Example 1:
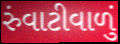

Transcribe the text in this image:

રુંવાટીવાળું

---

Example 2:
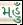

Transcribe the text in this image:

મહુઁ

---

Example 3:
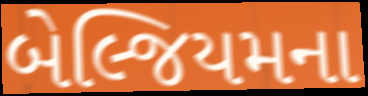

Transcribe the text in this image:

બેલ્જિયમના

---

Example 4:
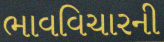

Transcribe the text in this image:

ભાવવિચારની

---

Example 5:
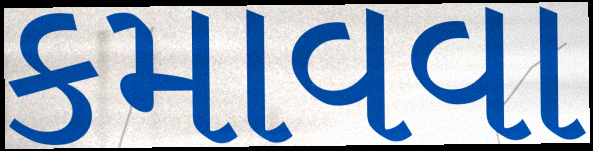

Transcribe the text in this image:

કમાવવા